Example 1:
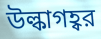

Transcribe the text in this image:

উল্কাগহ্বর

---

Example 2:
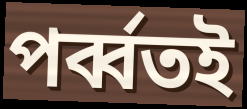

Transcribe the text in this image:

পর্ব্বতই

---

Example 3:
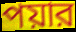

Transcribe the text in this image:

পয়ার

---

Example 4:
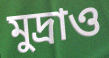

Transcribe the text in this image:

মুদ্রাও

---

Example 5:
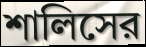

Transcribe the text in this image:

শালিসের